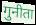
गुनीता